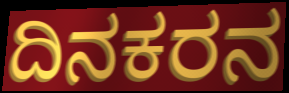
ದಿನಕರನ